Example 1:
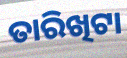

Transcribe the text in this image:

ତାରିଖିଟା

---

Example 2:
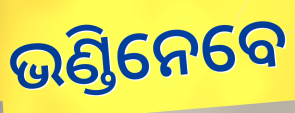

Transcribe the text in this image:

ଭଣ୍ଡିନେବେ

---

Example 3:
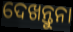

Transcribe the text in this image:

ଦେଖନ୍ତୁନା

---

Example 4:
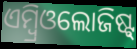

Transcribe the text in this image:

ଏମ୍ବ୍ରିଓଲୋଜିଷ୍ଟ୍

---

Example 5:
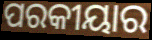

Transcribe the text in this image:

ପରକୀୟାର